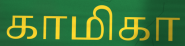
காமிகா